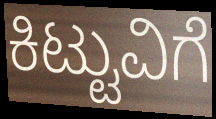
ಕಿಟ್ಟುವಿಗೆ